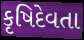
કૃષિદેવતા